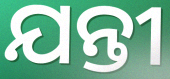
ଯନ୍ତୀ